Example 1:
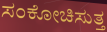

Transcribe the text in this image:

ಸಂಕೋಚಿಸುತ್ತ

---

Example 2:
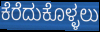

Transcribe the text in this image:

ಕೆರೆದುಕೊಳ್ಳಲು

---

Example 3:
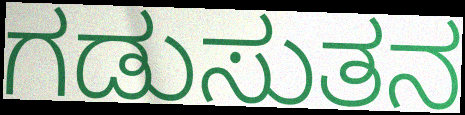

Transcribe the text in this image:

ಗಡುಸುತನ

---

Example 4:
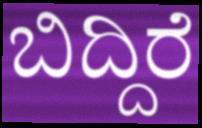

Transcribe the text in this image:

ಬಿದ್ದಿರೆ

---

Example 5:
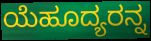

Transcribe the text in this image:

ಯೆಹೂದ್ಯರನ್ನ